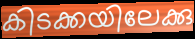
കിടക്കയിലേക്കു